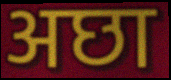
अछा